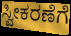
ಸ್ವೀಕರಣೆಗೆ